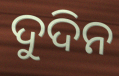
ଦୁଦିନ